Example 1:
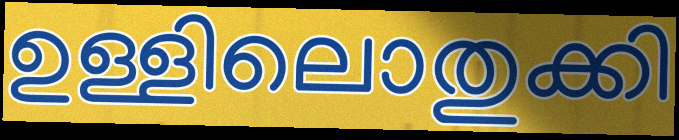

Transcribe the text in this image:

ഉള്ളിലൊതുക്കി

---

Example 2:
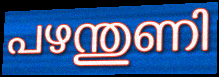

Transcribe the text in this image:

പഴന്തുണി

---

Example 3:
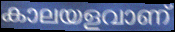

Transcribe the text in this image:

കാലയളവാണ്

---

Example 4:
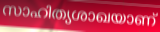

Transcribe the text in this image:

സാഹിത്യശാഖയാണ്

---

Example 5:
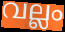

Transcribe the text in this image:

വല്ലം